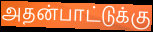
அதன்பாட்டுக்கு